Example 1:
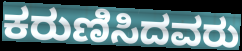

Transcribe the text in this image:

ಕರುಣಿಸಿದವರು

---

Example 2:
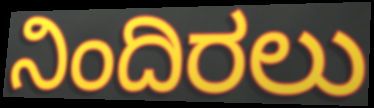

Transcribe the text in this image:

ನಿಂದಿರಲು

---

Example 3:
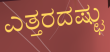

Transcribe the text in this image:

ಎತ್ತರದಷ್ಟು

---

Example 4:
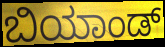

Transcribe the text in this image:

ಬಿಯಾಂಡ್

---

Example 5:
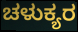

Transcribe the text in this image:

ಚಳುಕ್ಯರ